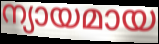
ന്യായമായ